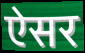
ऐसर